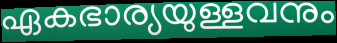
ഏകഭാര്യയുള്ളവനും